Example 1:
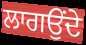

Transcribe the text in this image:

ਲਾਗਉਂਦੇ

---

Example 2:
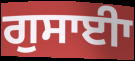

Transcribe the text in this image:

ਗੁਸਾਈਾ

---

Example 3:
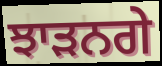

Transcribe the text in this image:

ਝਾੜਨਗੇ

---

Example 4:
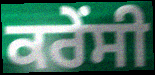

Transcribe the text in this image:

ਕਰੇੰਸੀ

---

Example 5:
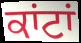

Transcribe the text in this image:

ਕਾਂਟਾਂ